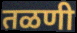
तळणी